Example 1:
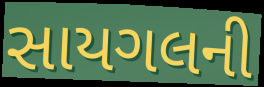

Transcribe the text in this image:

સાયગલની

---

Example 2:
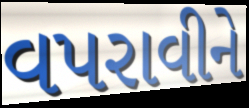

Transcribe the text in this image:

વપરાવીને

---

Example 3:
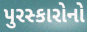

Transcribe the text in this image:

પુરસ્કારોનો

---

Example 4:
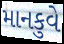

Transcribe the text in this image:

માનકુવે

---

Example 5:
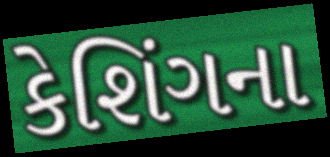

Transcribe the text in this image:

કેશિંગના